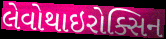
લેવોથાઇરોક્સિન